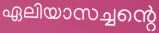
ഏലിയാസച്ചന്റെ